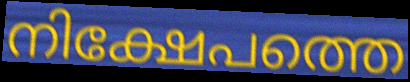
നിക്ഷേപത്തെ